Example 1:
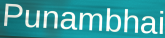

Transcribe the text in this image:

Punambhai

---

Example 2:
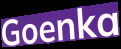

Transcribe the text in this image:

Goenka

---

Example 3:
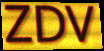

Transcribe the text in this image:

ZDV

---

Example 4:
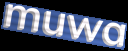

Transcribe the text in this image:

muwa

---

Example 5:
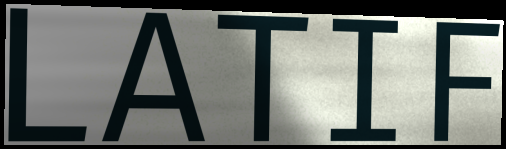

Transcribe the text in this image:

LATIF